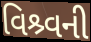
વિશ્ર્વની